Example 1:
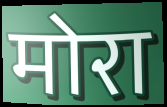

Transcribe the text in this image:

मोरा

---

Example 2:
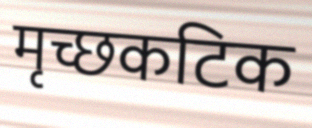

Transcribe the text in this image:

मृच्छकटिक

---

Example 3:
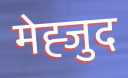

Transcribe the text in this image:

मेह्जुद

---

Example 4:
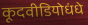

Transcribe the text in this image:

कूदवीडियोधंधे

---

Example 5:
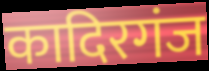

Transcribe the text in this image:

कादिरगंज